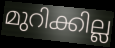
മുറിക്കില്ല